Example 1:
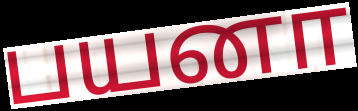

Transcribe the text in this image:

பயனா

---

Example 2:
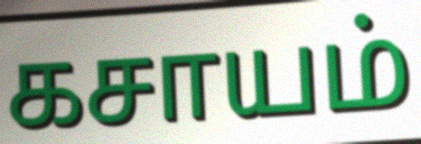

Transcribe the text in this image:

கசாயம்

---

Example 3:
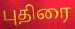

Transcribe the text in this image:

புதிரை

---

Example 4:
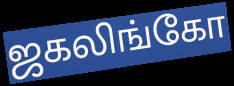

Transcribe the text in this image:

ஜகலிங்கோ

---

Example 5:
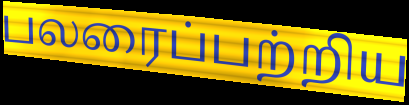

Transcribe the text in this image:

பலரைப்பற்றிய